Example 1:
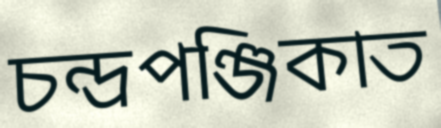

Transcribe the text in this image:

চন্দ্ৰপঞ্জিকাত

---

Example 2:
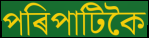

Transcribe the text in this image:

পৰিপাটিকৈ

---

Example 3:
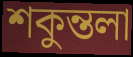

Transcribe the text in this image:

শকুন্তলা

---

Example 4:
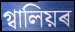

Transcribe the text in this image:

গ্বালিয়ৰ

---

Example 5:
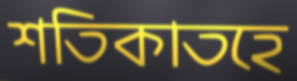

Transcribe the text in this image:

শতিকাতহে